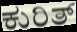
ಕುರಿತ್